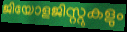
ജിയോളജിസ്റ്റുകളും